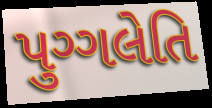
પુગ્ગલેતિ